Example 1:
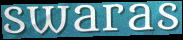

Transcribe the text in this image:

swaras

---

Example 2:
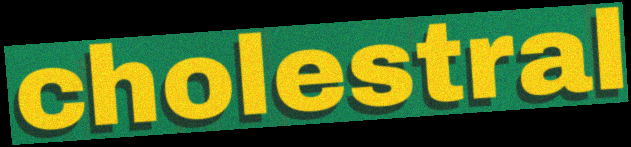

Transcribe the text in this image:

cholestral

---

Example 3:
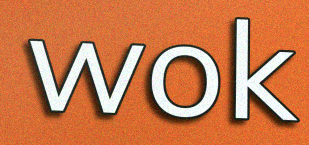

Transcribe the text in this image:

wok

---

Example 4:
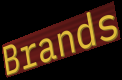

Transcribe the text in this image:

Brands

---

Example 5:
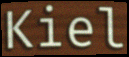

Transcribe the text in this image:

Kiel